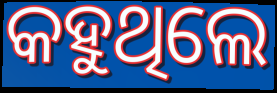
କହୁଥିଲେ